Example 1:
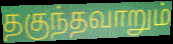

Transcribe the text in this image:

தகுந்தவாறும்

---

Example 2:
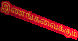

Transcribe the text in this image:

இணங்கவைக்கும்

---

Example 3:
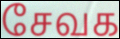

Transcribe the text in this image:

சேவக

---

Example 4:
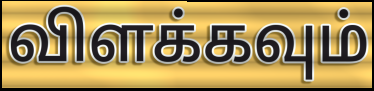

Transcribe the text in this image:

விளக்கவும்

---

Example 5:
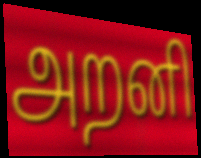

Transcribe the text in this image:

அறனி